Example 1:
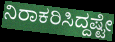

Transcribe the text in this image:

ನಿರಾಕರಿಸಿದ್ದಷ್ಟೇ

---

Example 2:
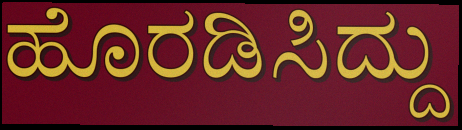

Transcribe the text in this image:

ಹೊರಡಿಸಿದ್ದು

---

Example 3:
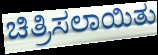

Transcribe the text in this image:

ಚಿತ್ರಿಸಲಾಯಿತು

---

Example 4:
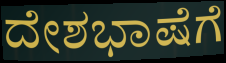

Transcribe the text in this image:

ದೇಶಭಾಷೆಗೆ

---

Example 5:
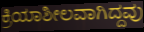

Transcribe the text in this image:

ಕ್ರಿಯಾಶೀಲವಾಗಿದ್ದವು